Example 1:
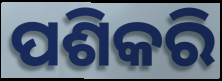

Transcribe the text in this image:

ପଶିକରି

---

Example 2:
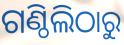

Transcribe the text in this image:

ଗଣ୍ଠିଲିଠାରୁ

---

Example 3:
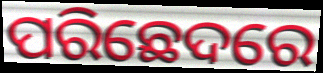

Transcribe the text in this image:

ପରିଛେଦରେ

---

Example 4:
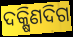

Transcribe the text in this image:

ଦକ୍ଷିଣଦିଗ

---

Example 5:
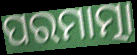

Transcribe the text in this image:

ପରମାତ୍ମା